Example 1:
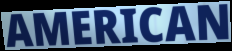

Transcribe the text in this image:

AMERICAN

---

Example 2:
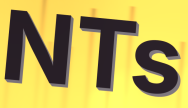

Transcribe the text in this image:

NTs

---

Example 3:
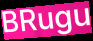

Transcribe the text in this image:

BRugu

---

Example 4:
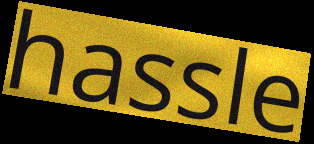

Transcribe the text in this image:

hassle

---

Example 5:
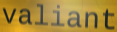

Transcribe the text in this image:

valiant